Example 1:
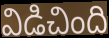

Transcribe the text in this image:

విడిచింది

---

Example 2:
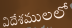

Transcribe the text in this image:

విదేశములలో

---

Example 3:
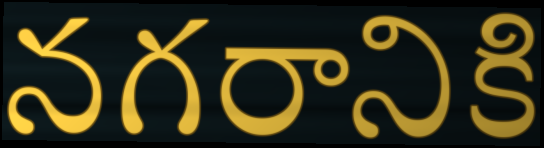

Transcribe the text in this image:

నగరానికి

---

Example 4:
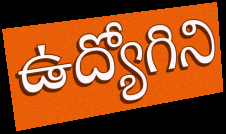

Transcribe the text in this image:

ఉద్యోగిని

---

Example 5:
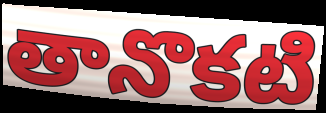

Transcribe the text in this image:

తానొకటి